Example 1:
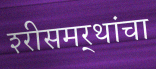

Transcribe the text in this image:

श्रीसमर्थांचा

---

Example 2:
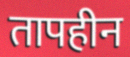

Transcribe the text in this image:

तापहीन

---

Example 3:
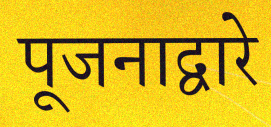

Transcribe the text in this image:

पूजनाद्वारे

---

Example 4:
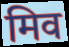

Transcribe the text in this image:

मिव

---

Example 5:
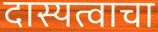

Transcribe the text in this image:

दास्यत्वाचा